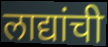
लाद्यांची